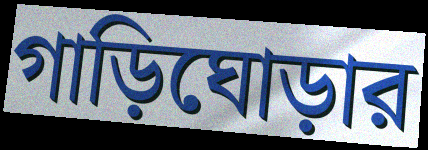
গাড়িঘোড়ার